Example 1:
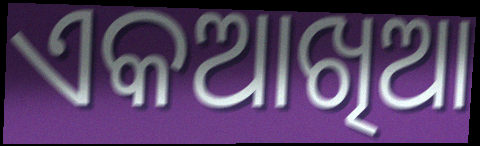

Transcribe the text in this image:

ଏକଆଖିଆ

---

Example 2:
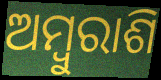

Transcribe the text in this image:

ଅମ୍ୱୁରାଶି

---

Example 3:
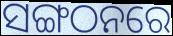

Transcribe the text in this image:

ସଙ୍ଗଠନରେ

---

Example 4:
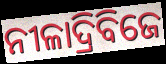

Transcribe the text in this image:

ନୀଳାଦ୍ରିବିଜେ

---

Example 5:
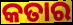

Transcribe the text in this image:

କତାର